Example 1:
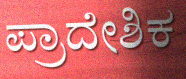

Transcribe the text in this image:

ಪ್ರಾದೇಶಿಕ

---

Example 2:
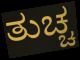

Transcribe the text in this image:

ತುಚ್ಚ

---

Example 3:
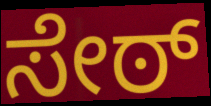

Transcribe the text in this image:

ಸೇಠ್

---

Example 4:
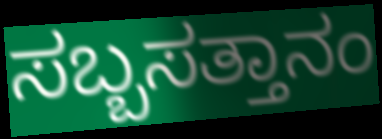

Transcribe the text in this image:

ಸಬ್ಬಸತ್ತಾನಂ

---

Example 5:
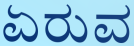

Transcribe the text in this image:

ಏರುವ